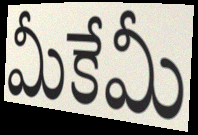
మీకేమీ